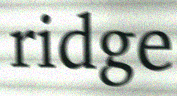
ridge